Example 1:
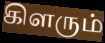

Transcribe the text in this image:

கிளரும்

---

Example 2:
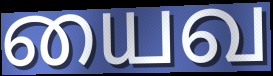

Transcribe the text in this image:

யைவ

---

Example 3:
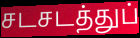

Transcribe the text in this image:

சடசடத்துப்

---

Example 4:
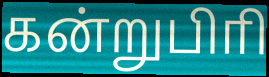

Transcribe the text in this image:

கன்றுபிரி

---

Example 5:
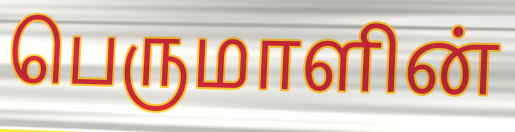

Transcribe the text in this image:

பெருமாளின்